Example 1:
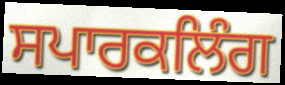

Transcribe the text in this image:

ਸਪਾਰਕਲਿੰਗ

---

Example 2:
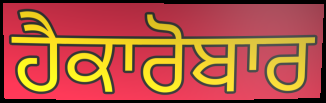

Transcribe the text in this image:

ਹੈਕਾਰੋਬਾਰ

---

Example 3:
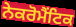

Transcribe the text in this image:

ਨੇਕਰੋਮੈਂਟਿਕ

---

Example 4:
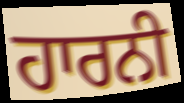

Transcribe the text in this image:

ਹਾਰਨੀ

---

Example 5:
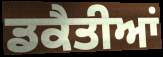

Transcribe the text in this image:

ਡਕੈਤੀਆਂ